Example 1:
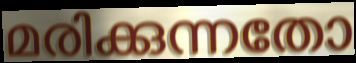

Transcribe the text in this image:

മരിക്കുന്നതോ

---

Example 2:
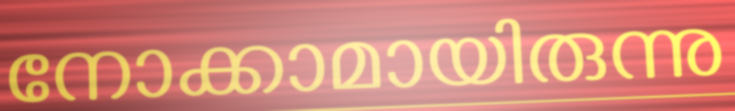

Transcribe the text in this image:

നോക്കാമായിരുന്നു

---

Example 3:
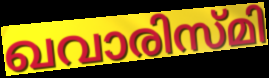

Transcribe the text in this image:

ഖവാരിസ്മി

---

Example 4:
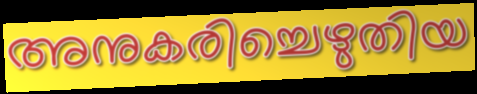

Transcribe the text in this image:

അനുകരിച്ചെഴുതിയ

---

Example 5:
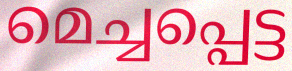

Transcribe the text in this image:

മെച്ചപ്പെട്ട